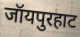
जॉयपुरहाट